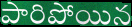
పారిపోయిన